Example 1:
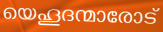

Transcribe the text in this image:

യെഹൂദന്മാരോട്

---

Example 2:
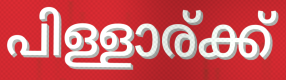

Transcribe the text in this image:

പിള്ളാര്ക്ക്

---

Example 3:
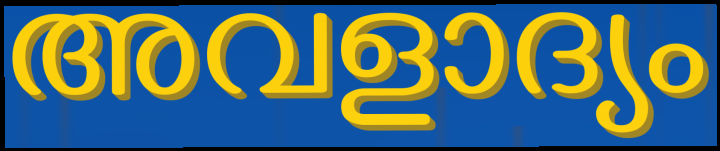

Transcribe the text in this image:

അവളാദ്യം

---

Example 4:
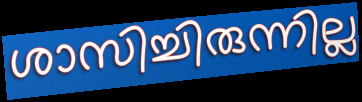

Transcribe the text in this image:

ശാസിച്ചിരുന്നില്ല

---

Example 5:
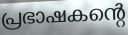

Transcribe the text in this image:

പ്രഭാഷകന്റെ